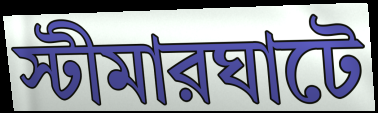
স্টীমারঘাটে